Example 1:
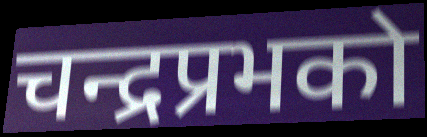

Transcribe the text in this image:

चन्द्रप्रभको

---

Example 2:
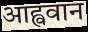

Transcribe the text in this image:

आह्ववान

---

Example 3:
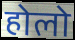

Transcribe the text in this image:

होलो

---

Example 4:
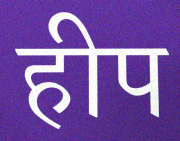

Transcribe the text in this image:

हीप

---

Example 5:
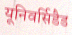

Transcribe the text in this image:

यूनिवर्सिडैड